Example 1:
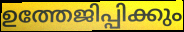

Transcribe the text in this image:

ഉത്തേജിപ്പിക്കും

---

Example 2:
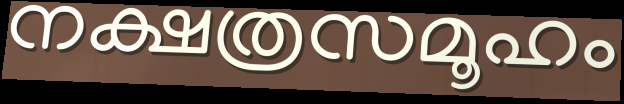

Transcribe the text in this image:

നക്ഷത്രസമൂഹം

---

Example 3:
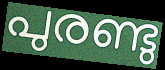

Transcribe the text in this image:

പുരണ്ടു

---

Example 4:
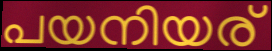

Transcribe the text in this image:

പയനിയര്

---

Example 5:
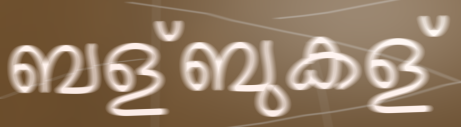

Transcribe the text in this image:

ബള്ബുകള്